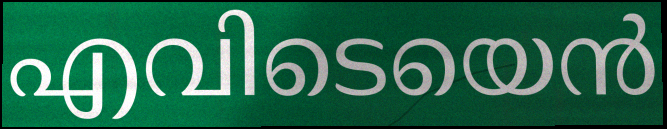
എവിടെയെൻ